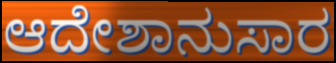
ಆದೇಶಾನುಸಾರ